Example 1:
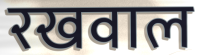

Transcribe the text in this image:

रखवाल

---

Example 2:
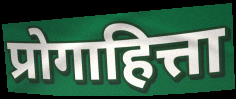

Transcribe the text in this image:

प्रोगाहित्ता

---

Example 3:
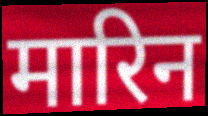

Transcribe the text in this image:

मारिन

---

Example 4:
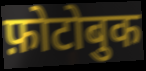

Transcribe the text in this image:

फ़ोटोबुक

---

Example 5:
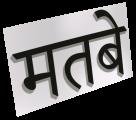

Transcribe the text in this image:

मतबे